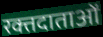
रक्तदाताओं